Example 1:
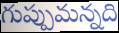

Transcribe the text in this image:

గుప్పుమన్నది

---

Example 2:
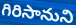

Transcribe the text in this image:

గిరిసానుని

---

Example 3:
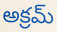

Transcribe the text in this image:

అక్రమ్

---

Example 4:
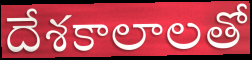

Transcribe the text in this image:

దేశకాలాలతో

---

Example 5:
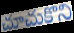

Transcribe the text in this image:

చూచుకొని